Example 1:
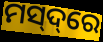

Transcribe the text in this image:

ମସ୍‌ଦ୍‌ରେ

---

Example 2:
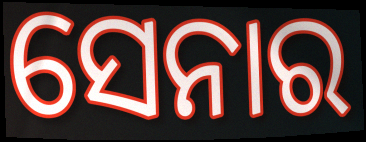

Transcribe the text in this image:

ସେନାର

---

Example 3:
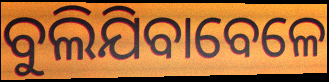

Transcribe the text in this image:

ବୁଲିଯିବାବେଳେ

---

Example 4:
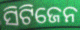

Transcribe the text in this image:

ସିଟିଜେନ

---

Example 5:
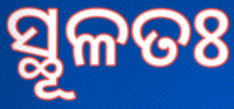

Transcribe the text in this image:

ସ୍ଥୂଳତଃ